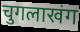
चुगलाखंग